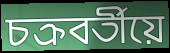
চক্ৰবৰ্তীয়ে